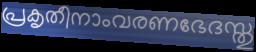
പ്രകൃതീനാംവരണഭേദസ്തു